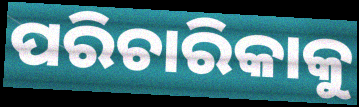
ପରିଚାରିକାକୁ